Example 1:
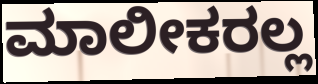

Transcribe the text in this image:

ಮಾಲೀಕರಲ್ಲ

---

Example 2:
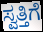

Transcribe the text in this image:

ಸ್ವತ್ತಿಗೆ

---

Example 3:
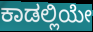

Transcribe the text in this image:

ಕಾಡಲ್ಲಿಯೇ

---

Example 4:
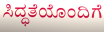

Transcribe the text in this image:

ಸಿದ್ಧತೆಯೊಂದಿಗೆ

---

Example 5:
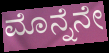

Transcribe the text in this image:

ಮೊನ್ನೆನೇ